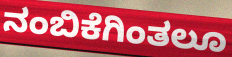
ನಂಬಿಕೆಗಿಂತಲೂ